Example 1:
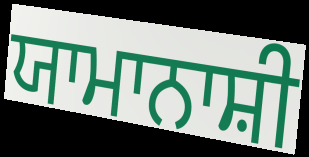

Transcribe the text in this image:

ਯਾਮਾਨਾਸ਼ੀ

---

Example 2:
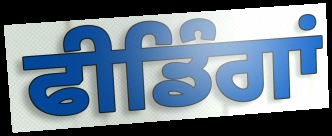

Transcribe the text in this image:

ਫੀਡਿੰਗਾਂ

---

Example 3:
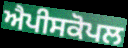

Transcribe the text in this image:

ਐਪੀਸਕੋਪਲ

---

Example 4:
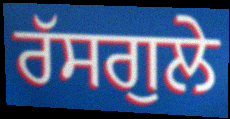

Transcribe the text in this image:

ਰੱਸਗੁਲੇ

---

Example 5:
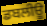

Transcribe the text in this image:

ਡਬਲੀਊ